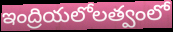
ఇంద్రియలోలత్వంలో